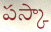
పస్కా